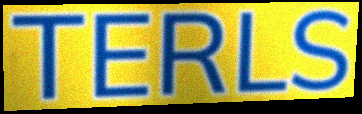
TERLS